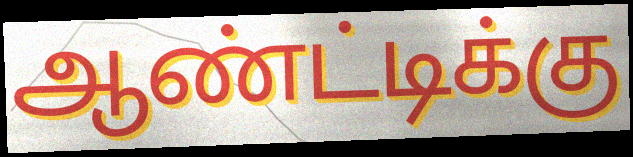
ஆண்ட்டிக்கு